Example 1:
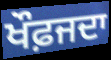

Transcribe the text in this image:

ਖੌਫ਼ਜਦਾ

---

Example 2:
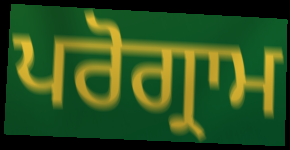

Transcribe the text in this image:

ਪਰੋਗ੍ਰਾਮ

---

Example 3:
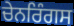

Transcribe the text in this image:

ਚੇਨਰਿੰਗਸ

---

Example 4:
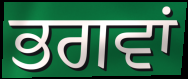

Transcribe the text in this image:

ਭਗਵਾਂ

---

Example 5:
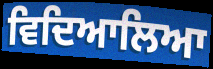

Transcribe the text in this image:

ਵਿਦਿਆਲਿਆ